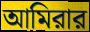
আমিরার